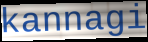
kannagi